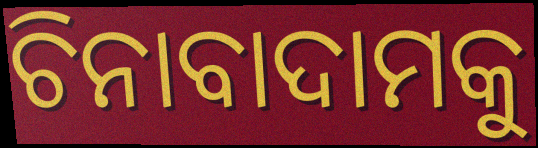
ଚିନାବାଦାମକୁ